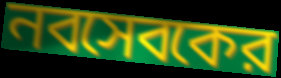
নবসেবকের